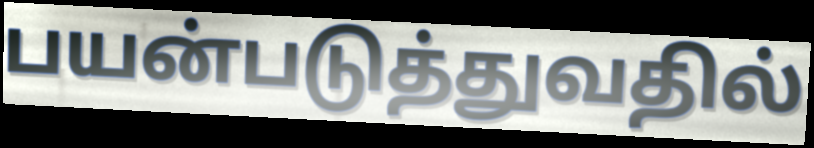
பயன்படுத்துவதில்